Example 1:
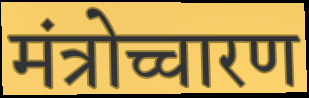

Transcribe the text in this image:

मंत्रोच्चारण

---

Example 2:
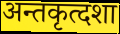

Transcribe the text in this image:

अन्तकृत्दशा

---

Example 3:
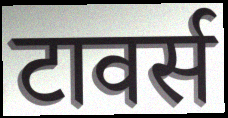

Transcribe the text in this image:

टावर्स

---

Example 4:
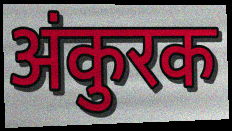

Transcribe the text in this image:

अंकुरक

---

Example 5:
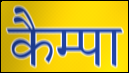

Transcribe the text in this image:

कैम्पा